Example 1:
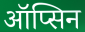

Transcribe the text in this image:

ऑप्सिन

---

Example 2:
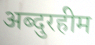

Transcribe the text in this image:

अब्दुरहीम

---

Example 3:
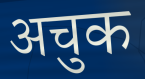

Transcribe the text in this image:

अचुक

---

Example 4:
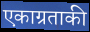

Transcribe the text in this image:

एकाग्रताकी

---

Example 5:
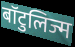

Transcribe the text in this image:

बॉटुलिज्म